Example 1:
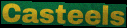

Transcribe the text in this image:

Casteels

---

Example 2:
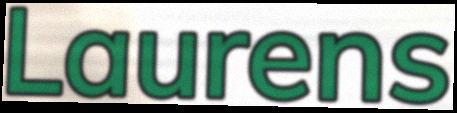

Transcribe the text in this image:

Laurens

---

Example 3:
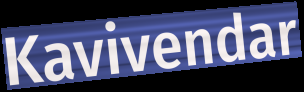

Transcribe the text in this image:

Kavivendar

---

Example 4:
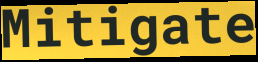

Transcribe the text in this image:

Mitigate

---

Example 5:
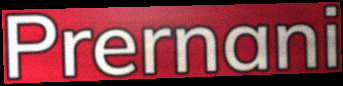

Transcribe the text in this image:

Prernani